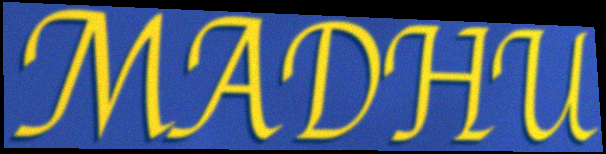
MADHU